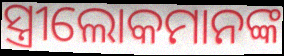
ସ୍ତ୍ରୀଲୋକମାନଙ୍କ